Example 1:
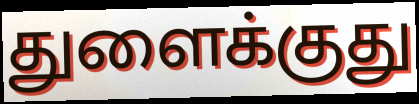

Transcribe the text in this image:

துளைக்குது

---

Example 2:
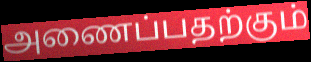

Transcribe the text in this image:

அணைப்பதற்கும்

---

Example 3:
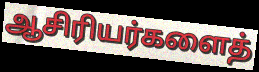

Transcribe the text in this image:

ஆசிரியர்களைத்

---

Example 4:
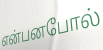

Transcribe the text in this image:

என்பனபோல்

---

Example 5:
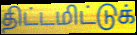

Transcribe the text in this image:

திட்டமிட்டுக்